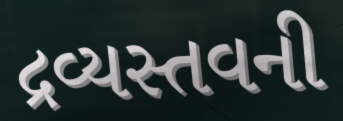
દ્રવ્યસ્તવની